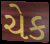
ચેક